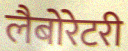
लैबोरेटरी